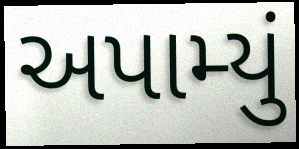
અપામ્યું